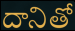
దానితో